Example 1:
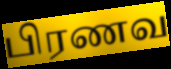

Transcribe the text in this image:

பிரணவ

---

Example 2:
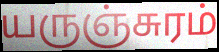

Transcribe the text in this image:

யருஞ்சுரம்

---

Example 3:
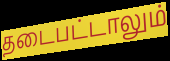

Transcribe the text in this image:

தடைபட்டாலும்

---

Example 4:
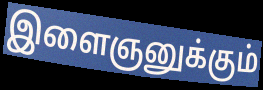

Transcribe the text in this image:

இளைஞனுக்கும்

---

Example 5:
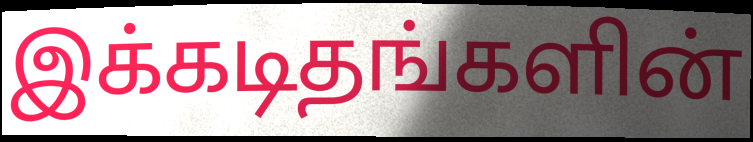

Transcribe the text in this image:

இக்கடிதங்களின்